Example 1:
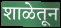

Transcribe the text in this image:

शाळेतून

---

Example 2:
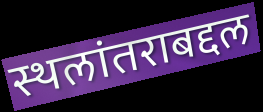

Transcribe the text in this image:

स्थलांतराबद्दल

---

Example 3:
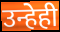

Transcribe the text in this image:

उन्हेही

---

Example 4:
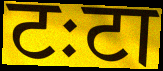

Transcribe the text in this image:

टःटा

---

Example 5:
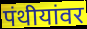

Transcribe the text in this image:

पंथीयांवर